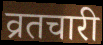
व्रतचारी